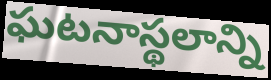
ఘటనాస్థలాన్ని